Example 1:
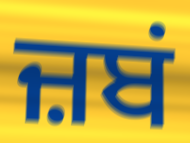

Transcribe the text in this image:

ਜ਼ਬਂ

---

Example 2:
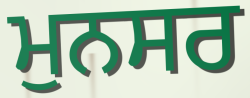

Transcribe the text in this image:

ਮੁਨਸਰ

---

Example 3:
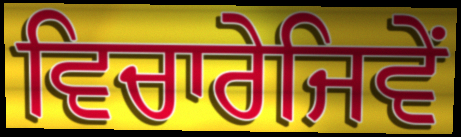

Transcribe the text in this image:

ਵਿਚਾਰੇਜਿਵੇਂ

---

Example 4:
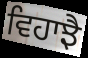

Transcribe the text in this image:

ਵਿਹਾਝੈ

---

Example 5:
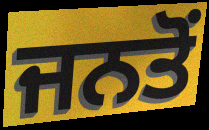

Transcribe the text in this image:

ਜਨਤੋਂ